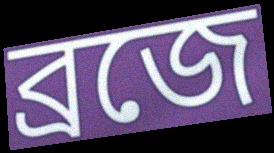
ব্রজে